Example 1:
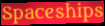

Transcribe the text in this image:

Spaceships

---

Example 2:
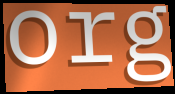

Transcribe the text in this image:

org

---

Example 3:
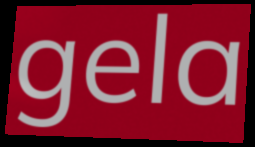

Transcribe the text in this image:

gela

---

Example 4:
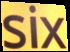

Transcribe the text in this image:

six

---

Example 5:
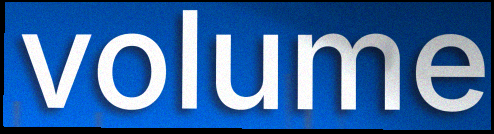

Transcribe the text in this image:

volume